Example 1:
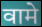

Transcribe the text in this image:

वामे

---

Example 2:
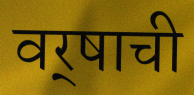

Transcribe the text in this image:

वर्षाची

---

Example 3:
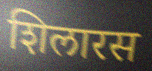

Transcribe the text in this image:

शिलारस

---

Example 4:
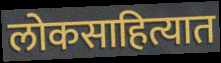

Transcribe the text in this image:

लोकसाहित्यात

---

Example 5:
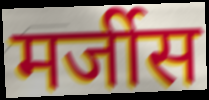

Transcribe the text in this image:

मर्जीस